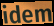
idem